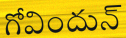
గోవిందున్